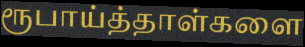
ரூபாய்த்தாள்களை